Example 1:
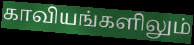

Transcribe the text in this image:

காவியங்களிலும்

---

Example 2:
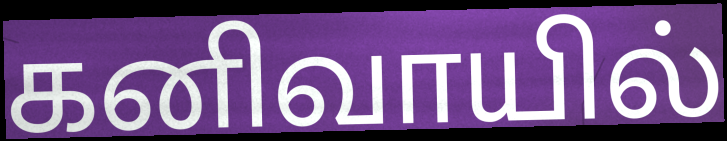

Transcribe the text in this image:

கனிவாயில்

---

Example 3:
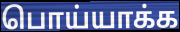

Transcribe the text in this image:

பொய்யாக்க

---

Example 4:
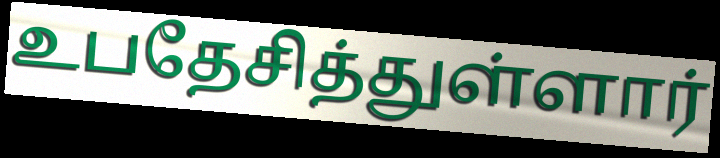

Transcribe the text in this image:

உபதேசித்துள்ளார்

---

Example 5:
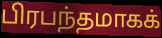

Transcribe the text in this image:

பிரபந்தமாகக்